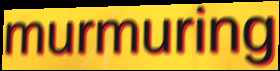
murmuring